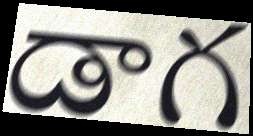
డాగ